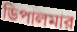
ডিপালমার